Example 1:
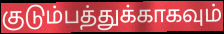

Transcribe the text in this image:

குடும்பத்துக்காகவும்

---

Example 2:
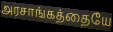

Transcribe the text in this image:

அரசாங்கத்தையே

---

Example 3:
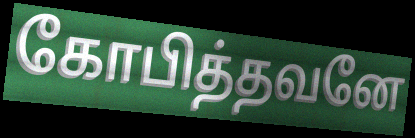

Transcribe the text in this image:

கோபித்தவனே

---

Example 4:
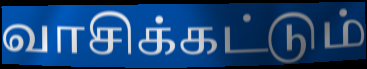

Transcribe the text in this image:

வாசிக்கட்டும்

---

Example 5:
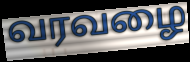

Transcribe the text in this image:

வரவழை